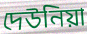
দেউনিয়া